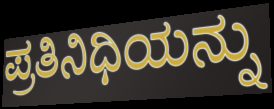
ಪ್ರತಿನಿಧಿಯನ್ನು